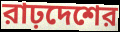
রাঢ়দেশের